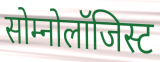
सोम्नोलॉजिस्ट